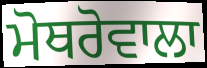
ਮੋਥਰੋਵਾਲਾ